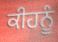
ਕੀਹਨੂੰ